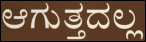
ಆಗುತ್ತದಲ್ಲ